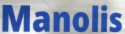
Manolis